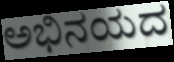
ಅಭಿನಯದ